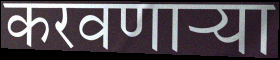
करवणाऱ्या